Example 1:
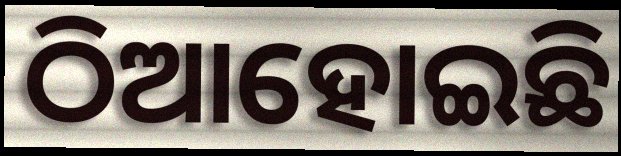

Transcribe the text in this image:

ଠିଆହୋଇଛି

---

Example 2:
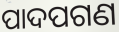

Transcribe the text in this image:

ପାଦପଗଣ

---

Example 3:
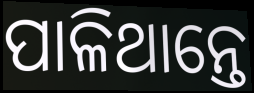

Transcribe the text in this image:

ପାଳିଥାନ୍ତେ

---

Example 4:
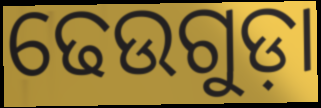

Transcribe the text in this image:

ଢେଉଗୁଡ଼ା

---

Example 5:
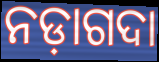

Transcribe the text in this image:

ନଡ଼ାଗଦା